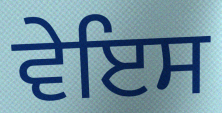
ਵੇਇਸ